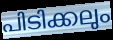
പിടിക്കലും